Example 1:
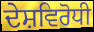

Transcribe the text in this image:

ਦੇਸ਼ਵਿਰੋਧੀ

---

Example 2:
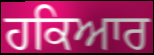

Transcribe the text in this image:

ਹਕਿਆਰ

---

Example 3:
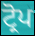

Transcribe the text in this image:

ਟ੍ਰੋਪ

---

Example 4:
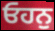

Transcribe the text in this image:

ਓਹਨੁ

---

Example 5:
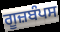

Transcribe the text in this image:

ਗੂਜ਼ਬੰਪਸ